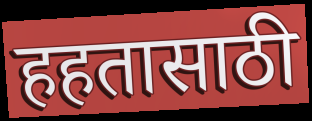
हहतासाठी